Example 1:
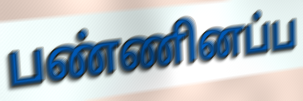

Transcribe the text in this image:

பண்ணினப்ப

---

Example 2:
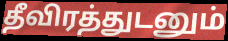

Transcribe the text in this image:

தீவிரத்துடனும்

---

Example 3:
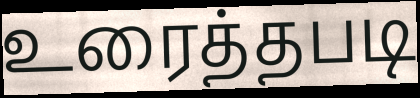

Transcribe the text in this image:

உரைத்தபடி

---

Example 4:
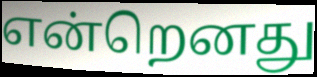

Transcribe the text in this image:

என்றெனது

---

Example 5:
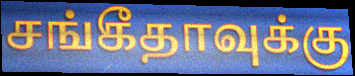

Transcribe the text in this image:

சங்கீதாவுக்கு